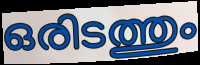
ഒരിടത്തും